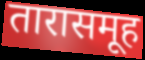
तारासमूह